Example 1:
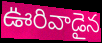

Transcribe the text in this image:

ఊరివాడైన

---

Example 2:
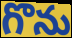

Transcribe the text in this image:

గొను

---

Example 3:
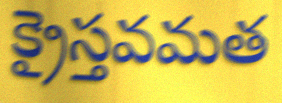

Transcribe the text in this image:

క్రైస్తవమత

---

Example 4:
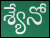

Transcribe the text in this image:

శ్యేనో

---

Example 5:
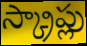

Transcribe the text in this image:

స్క్రాప్లు